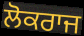
ਲੋਕਰਾਜ